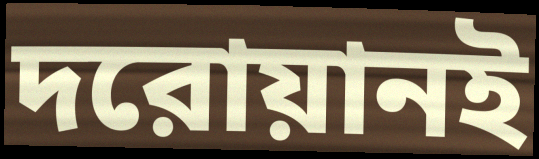
দরোয়ানই